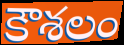
కౌశలం